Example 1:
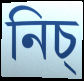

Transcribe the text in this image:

নিচ্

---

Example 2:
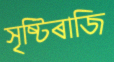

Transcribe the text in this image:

সৃষ্টিৰাজি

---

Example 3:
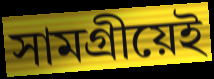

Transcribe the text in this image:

সামগ্ৰীয়েই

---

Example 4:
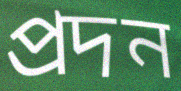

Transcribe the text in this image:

প্ৰদন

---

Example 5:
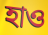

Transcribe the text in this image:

হাও